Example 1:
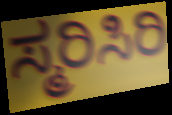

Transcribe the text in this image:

ಸ್ಮರಿಸಿರಿ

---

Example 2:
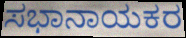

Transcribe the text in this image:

ಸಭಾನಾಯಕರ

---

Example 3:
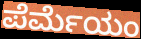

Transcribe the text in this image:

ಪೆರ್ಮೆಯಂ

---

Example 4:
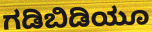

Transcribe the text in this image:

ಗಡಿಬಿಡಿಯೂ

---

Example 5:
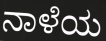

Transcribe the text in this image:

ನಾಳೆಯ